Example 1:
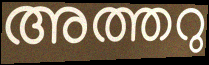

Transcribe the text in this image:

അത്തറു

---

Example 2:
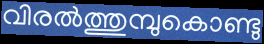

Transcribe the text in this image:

വിരൽത്തുമ്പുകൊണ്ടു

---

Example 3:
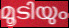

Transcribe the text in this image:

മൂടിയും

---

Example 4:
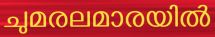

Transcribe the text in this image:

ചുമരലമാരയിൽ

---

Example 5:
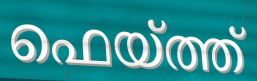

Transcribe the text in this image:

ഫെയ്ത്ത്